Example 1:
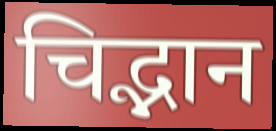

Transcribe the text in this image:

चिद्भान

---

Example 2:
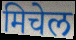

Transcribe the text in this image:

मिचेल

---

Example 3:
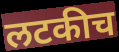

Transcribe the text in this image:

लटकीच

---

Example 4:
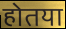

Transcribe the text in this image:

होतया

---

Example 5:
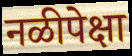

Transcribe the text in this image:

नळीपेक्षा